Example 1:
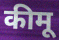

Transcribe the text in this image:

कीमू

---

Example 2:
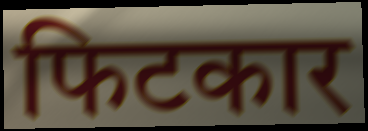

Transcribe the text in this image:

फिटकार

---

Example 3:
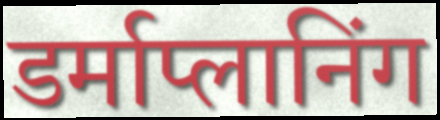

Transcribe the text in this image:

डर्माप्लानिंग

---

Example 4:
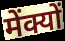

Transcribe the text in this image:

मेंक्यों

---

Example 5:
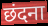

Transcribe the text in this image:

छंदना